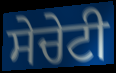
ਸੇਚੇਟੀ